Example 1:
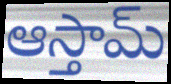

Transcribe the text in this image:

ఆస్తామ్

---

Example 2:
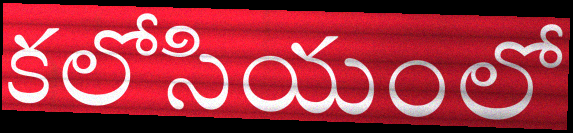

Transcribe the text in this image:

కలోసియంలో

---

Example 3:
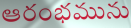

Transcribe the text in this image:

ఆరంభమును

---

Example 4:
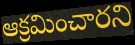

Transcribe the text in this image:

ఆక్రమించారని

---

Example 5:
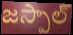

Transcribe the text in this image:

జస్పాల్